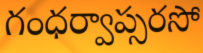
గంధర్వాప్సరసో